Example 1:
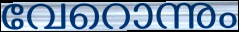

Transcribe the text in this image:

വേറൊന്നും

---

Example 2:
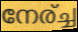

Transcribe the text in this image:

നേര്ച്ച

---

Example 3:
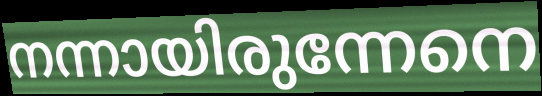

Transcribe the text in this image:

നന്നായിരുന്നേനെ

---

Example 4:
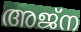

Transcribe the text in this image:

അജ്ന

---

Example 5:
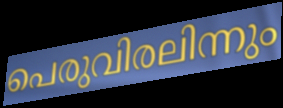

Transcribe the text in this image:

പെരുവിരലിന്നും